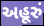
અહૂરું